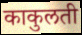
काकुलती